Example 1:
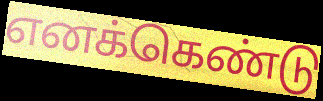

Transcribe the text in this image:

எனக்கெண்டு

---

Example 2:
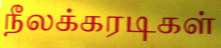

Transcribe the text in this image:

நீலக்கரடிகள்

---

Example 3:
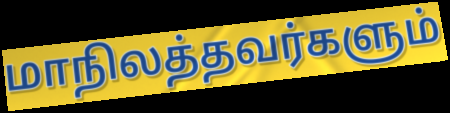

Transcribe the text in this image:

மாநிலத்தவர்களும்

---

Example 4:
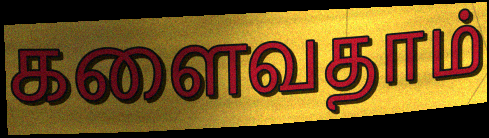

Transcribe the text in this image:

களைவதாம்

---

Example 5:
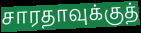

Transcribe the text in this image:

சாரதாவுக்குத்